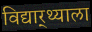
विद्यार्थ्याला